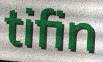
tifin